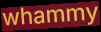
whammy